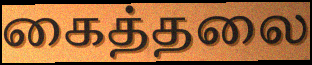
கைத்தலை